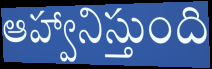
ఆహ్వానిస్తుంది